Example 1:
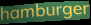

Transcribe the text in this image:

hamburger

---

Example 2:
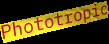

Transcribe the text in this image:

Phototropic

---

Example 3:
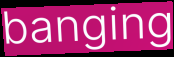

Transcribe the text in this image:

banging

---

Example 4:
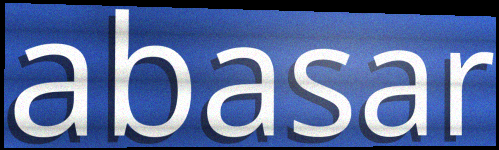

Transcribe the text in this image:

abasar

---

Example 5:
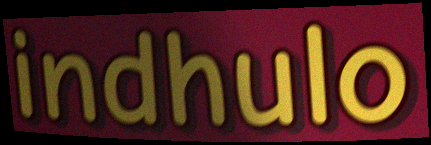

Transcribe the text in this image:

indhulo